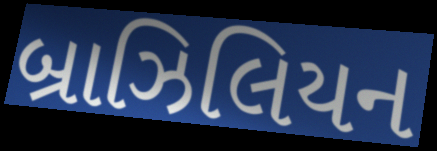
બ્રાઝિલિયન